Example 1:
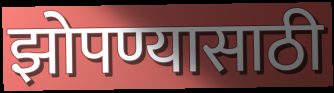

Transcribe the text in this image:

झोपण्यासाठी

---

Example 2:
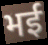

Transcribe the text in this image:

भई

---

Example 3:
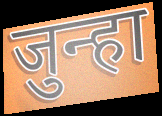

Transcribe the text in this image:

जुन्हा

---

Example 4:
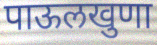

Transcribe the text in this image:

पाऊलखुणा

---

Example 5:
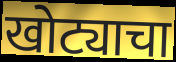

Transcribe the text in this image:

खोट्याचा